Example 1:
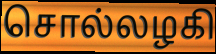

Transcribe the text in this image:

சொல்லழகி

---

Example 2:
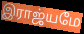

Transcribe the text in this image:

இராஜ்யமே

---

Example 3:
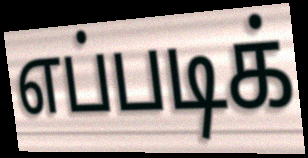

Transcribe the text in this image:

எப்படிக்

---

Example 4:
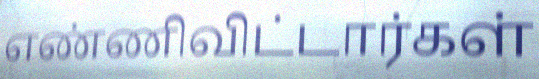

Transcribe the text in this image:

எண்ணிவிட்டார்கள்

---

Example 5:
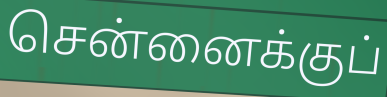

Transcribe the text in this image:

சென்னைக்குப்